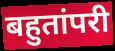
बहुतांपरी